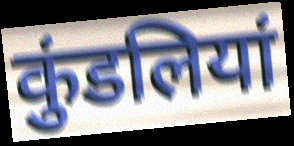
कुंडलियां